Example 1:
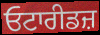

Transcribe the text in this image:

ਓਟਾਰੀਡਜ਼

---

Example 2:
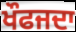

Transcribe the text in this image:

ਖੌਫਜਦਾ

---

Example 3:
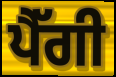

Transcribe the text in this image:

ਪੈੱਗੀ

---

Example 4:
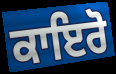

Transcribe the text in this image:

ਕਾਇਰੋ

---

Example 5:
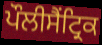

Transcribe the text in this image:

ਪੌਲੀਸੈਂਟ੍ਰਿਕ